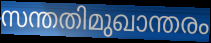
സന്തതിമുഖാന്തരം